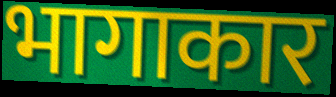
भागाकार